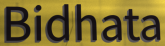
Bidhata